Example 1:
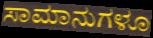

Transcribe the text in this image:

ಸಾಮಾನುಗಳೂ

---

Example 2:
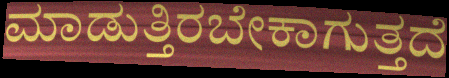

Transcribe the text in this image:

ಮಾಡುತ್ತಿರಬೇಕಾಗುತ್ತದೆ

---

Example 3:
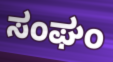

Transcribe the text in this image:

ಸಂಘಂ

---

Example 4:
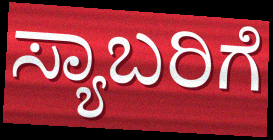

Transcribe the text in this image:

ಸ್ಯಾಬರಿಗೆ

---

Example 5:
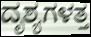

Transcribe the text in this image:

ದೃಶ್ಯಗಳತ್ತ